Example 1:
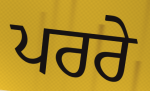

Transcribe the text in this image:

ਪਰਰੇ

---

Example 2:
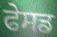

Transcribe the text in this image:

ਫੇਸਡ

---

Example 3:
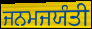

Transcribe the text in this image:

ਜਨਮਜਯੰਤੀ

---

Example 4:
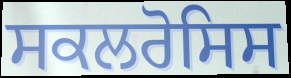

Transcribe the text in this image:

ਸਕਲਰੋਸਿਸ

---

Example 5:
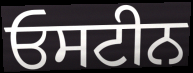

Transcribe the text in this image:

ਓਸਟੀਨ